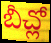
బీచ్లో